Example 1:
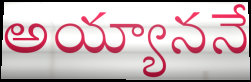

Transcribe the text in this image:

అయ్యాననే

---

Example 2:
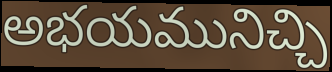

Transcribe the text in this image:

అభయమునిచ్చి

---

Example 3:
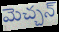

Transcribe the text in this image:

మెచ్చన్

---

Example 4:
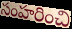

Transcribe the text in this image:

సంహరించి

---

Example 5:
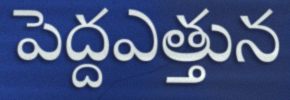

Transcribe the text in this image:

పెద్దఎత్తున